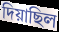
দিয়াছিল